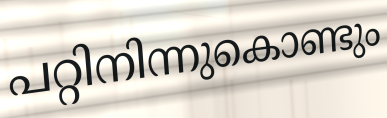
പറ്റിനിന്നുകൊണ്ടും